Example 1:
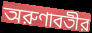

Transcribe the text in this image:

অরুণাবতীর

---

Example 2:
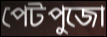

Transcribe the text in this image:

পেটপুজো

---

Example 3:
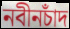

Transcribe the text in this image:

নবীনচাঁদ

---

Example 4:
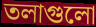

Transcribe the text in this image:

তলাগুলো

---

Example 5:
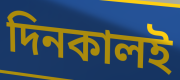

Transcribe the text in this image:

দিনকালই